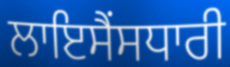
ਲਾਇਸੈਂਸਧਾਰੀ